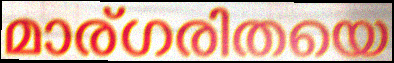
മാര്ഗരിതയെ